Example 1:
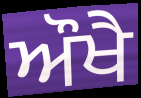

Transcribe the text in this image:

ਔਖੈ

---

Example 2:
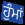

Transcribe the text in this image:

ਹੁੰਮਾਂ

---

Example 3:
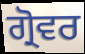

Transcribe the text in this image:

ਗ੍ਰੋਵਰ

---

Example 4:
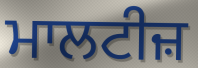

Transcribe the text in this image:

ਮਾਲਟੀਜ਼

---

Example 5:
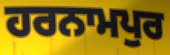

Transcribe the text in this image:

ਹਰਨਾਮਪੁਰ